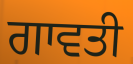
ਗਾਵਤੀ